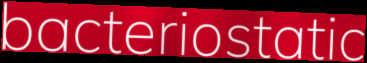
bacteriostatic